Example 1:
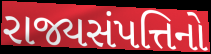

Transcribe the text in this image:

રાજ્યસંપત્તિનો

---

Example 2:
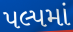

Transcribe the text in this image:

પલ્પમાં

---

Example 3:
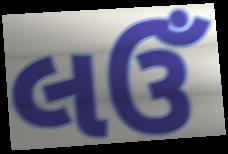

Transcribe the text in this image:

લઉઁ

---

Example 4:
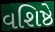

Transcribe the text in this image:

વશિષ્ઠે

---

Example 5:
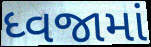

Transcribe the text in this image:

ધ્વજામાં